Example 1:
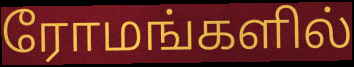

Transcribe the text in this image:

ரோமங்களில்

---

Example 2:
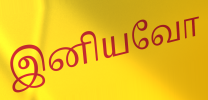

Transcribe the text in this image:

இனியவோ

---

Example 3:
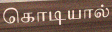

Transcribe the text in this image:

கொடியால்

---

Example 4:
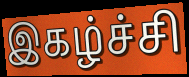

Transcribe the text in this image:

இகழ்ச்சி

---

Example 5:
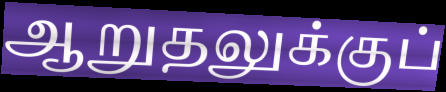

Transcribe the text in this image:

ஆறுதலுக்குப்